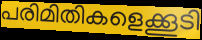
പരിമിതികളെക്കൂടി